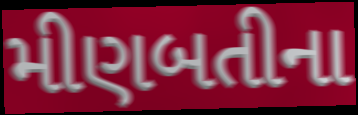
મીણબતીના